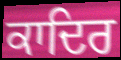
ਕਾਦਿਰ